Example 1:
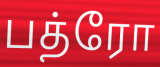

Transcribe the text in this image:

பத்ரோ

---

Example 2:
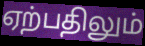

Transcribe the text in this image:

ஏற்பதிலும்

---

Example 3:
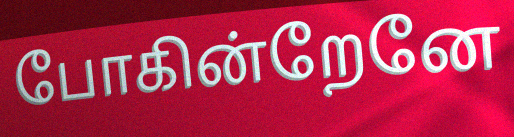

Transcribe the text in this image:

போகின்றேனே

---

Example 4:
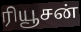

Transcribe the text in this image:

ரியூசன்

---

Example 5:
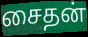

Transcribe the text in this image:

சைதன்